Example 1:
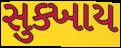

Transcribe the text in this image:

સુક્ખાય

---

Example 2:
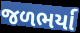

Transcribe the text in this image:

જળભર્યા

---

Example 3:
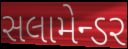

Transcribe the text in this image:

સલામેન્ડર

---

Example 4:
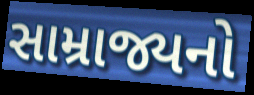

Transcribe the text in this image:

સામ્રાજ્યનો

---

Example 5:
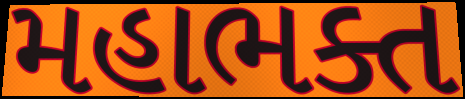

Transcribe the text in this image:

મહાભક્ત